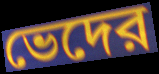
ভেদের